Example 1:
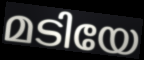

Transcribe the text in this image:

മടിയേ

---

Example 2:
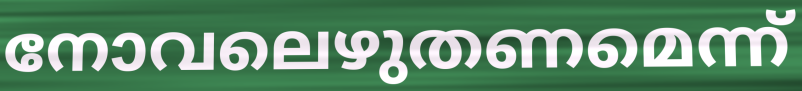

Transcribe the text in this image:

നോവലെഴുതണമെന്ന്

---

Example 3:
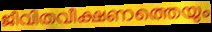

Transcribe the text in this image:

ജീവിതവീക്ഷണത്തെയും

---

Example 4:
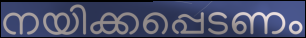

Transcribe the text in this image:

നയിക്കപ്പെടണം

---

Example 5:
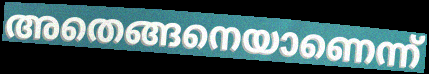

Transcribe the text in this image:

അതെങ്ങനെയാണെന്ന്